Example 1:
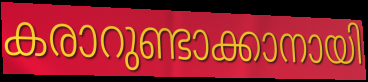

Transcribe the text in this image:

കരാറുണ്ടാക്കാനായി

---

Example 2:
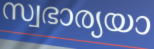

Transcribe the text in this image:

സ്വഭാര്യയാ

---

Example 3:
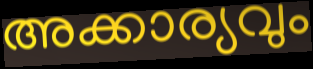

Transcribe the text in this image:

അക്കാര്യവും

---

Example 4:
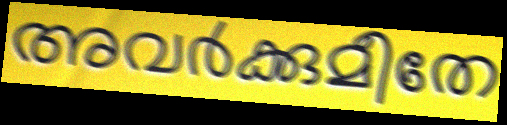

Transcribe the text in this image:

അവർക്കുമീതേ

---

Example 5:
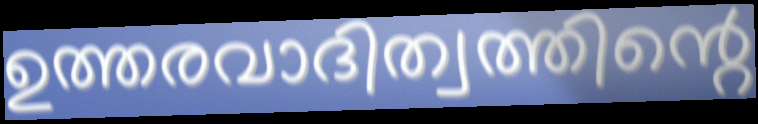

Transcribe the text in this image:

ഉത്തരവാദിത്വത്തിന്റെ